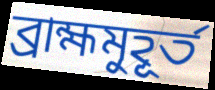
ব্রাহ্মমুহূর্ত